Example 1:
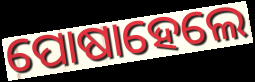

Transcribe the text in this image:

ପୋଷାହେଲେ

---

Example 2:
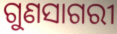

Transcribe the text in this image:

ଗୁଣସାଗରୀ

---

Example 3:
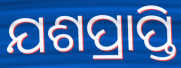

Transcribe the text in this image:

ଯଶପ୍ରାପ୍ତି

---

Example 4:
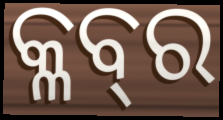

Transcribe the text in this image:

କ୍ଳବ୍‍ର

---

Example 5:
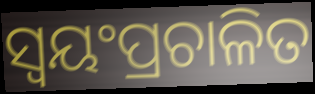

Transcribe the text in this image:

ସ୍ୱୟଂପ୍ରଚାଳିତ